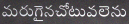
మరుగైనచోటువలెను